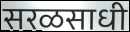
सरळसाधी